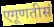
एगूणतीसं